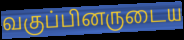
வகுப்பினருடைய